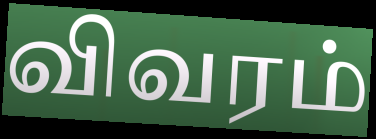
விவரம்